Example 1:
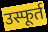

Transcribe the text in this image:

उस्फूर्त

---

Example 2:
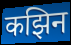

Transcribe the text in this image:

कझिन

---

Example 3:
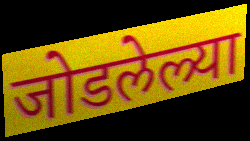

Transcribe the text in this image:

जोडलेल्या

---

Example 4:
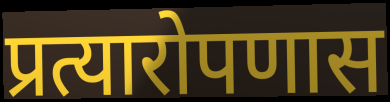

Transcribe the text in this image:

प्रत्यारोपणास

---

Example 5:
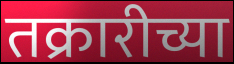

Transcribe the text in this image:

तक्रारीच्या